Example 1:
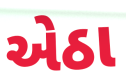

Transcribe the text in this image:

એઠા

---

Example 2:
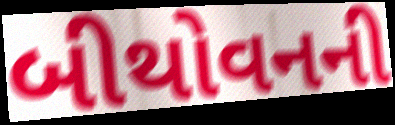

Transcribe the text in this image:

બીથોવનની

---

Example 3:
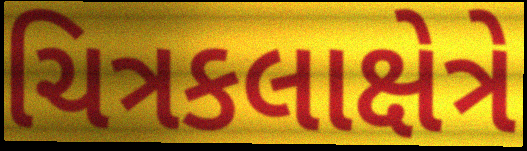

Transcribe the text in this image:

ચિત્રકલાક્ષેત્રે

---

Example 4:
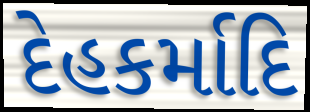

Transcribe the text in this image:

દેહકર્માદિ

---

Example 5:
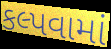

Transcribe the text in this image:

કલ્પવામાં